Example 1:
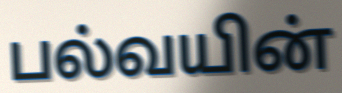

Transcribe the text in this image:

பல்வயின்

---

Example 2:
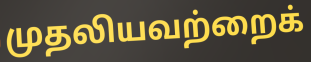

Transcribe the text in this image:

முதலியவற்றைக்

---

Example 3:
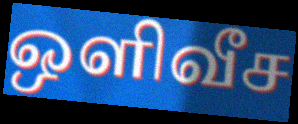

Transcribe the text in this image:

ஒளிவீச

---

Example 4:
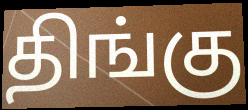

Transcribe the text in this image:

திங்கு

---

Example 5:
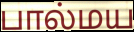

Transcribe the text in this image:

பால்மய